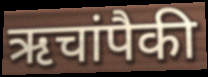
ऋचांपैकी